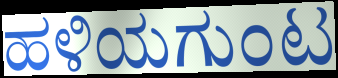
ಹಳಿಯಗುಂಟ